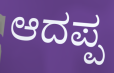
ಆದಪ್ಪ